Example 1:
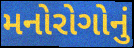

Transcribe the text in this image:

મનોરોગોનું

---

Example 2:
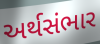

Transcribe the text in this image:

અર્થસંભાર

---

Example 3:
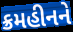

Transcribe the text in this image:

ક્રમહીનને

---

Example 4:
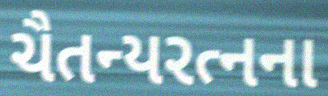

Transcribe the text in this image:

ચૈતન્યરત્નના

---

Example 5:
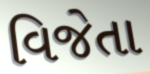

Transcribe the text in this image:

વિજેતા